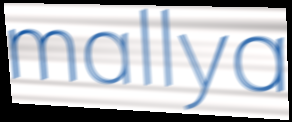
mallya